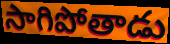
సాగిపోతాడు